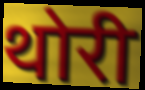
थोरी